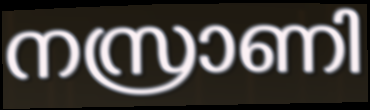
നസ്രാണി